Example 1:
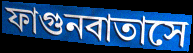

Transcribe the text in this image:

ফাগুনবাতাসে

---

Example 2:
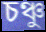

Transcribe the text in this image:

চঞ্চু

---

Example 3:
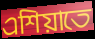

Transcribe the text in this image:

এশিয়াতে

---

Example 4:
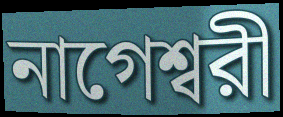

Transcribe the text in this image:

নাগেশ্বরী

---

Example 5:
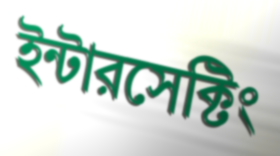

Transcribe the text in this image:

ইন্টারসেক্টিং